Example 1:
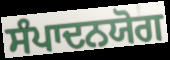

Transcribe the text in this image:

ਸੰਪਾਦਨਯੋਗ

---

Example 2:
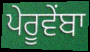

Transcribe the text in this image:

ਪੇਰੂਵੇਂਬਾ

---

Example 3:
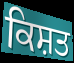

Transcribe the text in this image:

ਕਿਸ਼ਤ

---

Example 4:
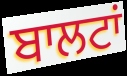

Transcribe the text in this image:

ਬਾਲਟਾਂ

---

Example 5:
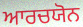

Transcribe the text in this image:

ਆਰਚਯੋਨ